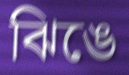
ঝিঙে